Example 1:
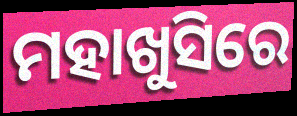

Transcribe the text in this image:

ମହାଖୁସିରେ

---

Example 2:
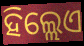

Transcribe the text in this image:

ହିଲ୍ଲେଏ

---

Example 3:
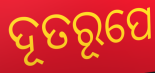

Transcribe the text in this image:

ଦୂତରୂପେ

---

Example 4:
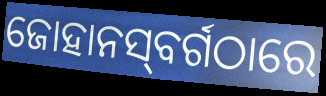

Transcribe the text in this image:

ଜୋହାନସ୍‌ବର୍ଗଠାରେ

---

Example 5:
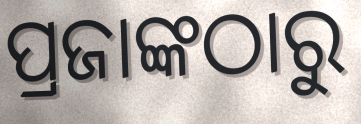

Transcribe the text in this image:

ପ୍ରଜାଙ୍କଠାରୁ